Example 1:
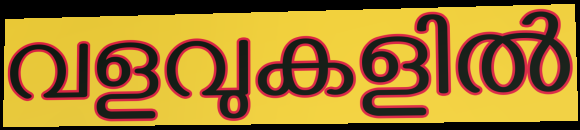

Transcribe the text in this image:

വളവുകളിൽ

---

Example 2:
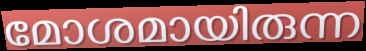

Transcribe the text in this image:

മോശമായിരുന്ന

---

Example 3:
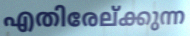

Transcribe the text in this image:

എതിരേല്ക്കുന്ന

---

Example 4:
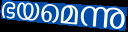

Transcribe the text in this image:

ഭയമെന്നു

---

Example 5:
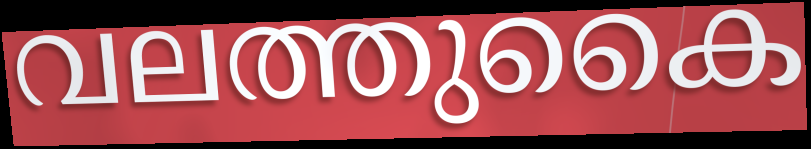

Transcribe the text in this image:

വലത്തുകൈ